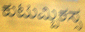
ಕುಟುಮ್ಬಿಕಸ್ಸ